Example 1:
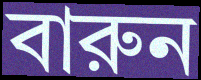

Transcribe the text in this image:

বারুন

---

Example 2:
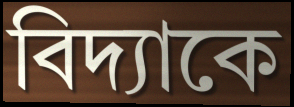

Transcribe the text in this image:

বিদ্যাকে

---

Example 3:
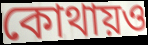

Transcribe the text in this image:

কোথায়ও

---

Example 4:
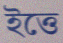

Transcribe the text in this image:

ইত্তে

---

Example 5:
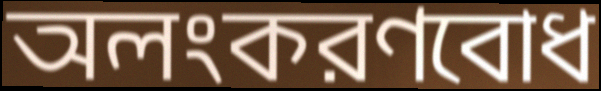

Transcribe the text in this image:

অলংকরণবোধ